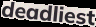
deadliest